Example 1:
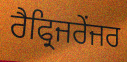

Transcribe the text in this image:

ਰੈਫ੍ਰਿਜਰੇਂਜਰ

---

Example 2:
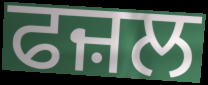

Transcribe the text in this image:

ਫਜ਼ਲ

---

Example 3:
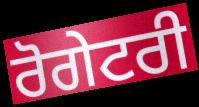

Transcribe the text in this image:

ਰੋਗੇਟਰੀ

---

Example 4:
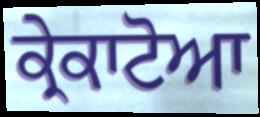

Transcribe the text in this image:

ਕ੍ਰੇਕਾਟੋਆ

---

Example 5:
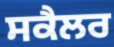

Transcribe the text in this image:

ਸਕੈਲਰ